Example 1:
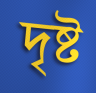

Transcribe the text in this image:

দৃষ্ট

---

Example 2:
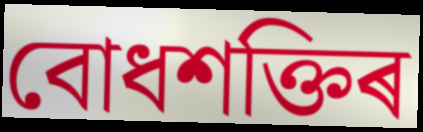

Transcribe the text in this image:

বোধশক্তিৰ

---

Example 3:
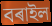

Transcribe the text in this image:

বৰাইল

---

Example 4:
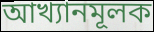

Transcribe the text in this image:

আখ্যানমূলক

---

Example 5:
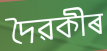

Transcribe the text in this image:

দৈৱকীৰ